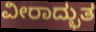
ವೀರಾದ್ಭುತ